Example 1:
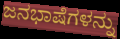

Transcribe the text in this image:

ಜನಭಾಷೆಗಳನ್ನು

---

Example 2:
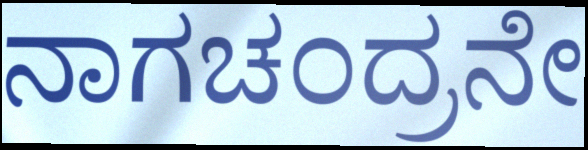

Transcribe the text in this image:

ನಾಗಚಂದ್ರನೇ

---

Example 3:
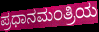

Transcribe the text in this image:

ಪ್ರಧಾನಮಂತ್ರಿಯ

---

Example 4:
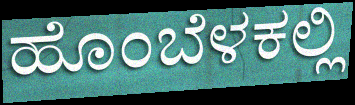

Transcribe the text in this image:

ಹೊಂಬೆಳಕಲ್ಲಿ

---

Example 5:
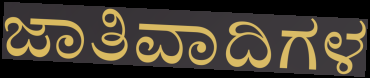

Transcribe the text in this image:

ಜಾತಿವಾದಿಗಳ